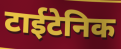
टाईटेनिक